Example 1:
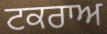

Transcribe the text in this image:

ਟਕਰਾਅ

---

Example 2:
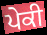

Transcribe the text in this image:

ਪੇਕੀ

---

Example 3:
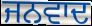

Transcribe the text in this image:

ਜਨਵਾਦ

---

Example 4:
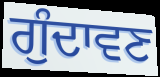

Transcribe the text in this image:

ਗੁੰਦਾਵਣ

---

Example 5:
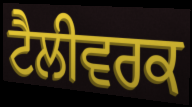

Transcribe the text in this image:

ਟੈਲੀਵਰਕ